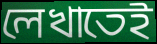
লেখাতেই